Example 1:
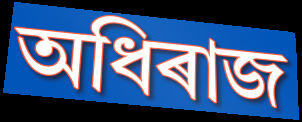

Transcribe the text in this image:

অধিৰাজ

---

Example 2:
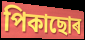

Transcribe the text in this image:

পিকাছোৰ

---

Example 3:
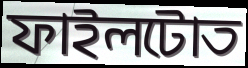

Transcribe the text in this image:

ফাইলটোত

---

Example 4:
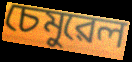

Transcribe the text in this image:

চেমুৱেল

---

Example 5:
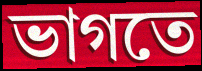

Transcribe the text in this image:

ভাগতে